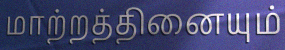
மாற்றத்தினையும்